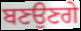
ਬਣਉਣਗੇ